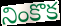
నింకొక